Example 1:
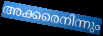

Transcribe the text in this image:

അക്കരെനിന്നും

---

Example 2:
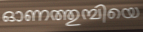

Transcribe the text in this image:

ഓണത്തുമ്പിയെ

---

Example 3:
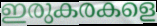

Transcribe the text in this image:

ഇരുകരകളെ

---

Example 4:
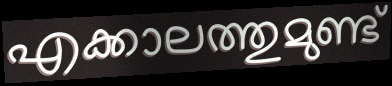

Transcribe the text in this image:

എക്കാലത്തുമുണ്ട്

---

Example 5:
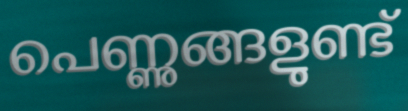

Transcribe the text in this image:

പെണ്ണുങ്ങളുണ്ട്